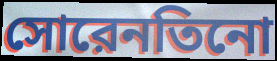
সোরেনতিনো